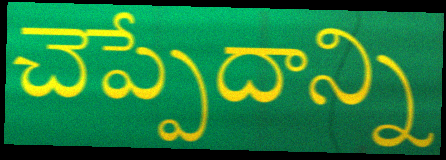
చెప్పేదాన్ని